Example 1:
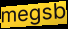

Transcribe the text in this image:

megsb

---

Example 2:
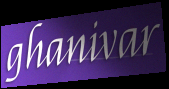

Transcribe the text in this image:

ghanivar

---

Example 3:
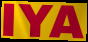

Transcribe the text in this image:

IYA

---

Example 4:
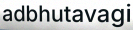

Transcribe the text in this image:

adbhutavagi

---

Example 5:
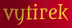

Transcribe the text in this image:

vytirek